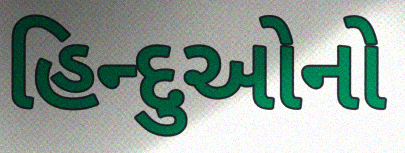
હિન્દુઓનો